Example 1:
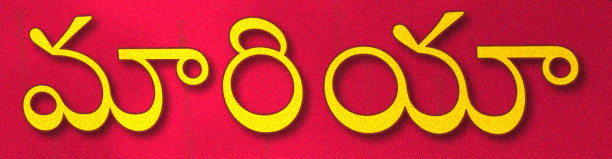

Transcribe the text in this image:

మారియా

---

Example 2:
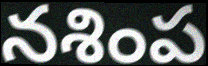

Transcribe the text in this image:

నశింప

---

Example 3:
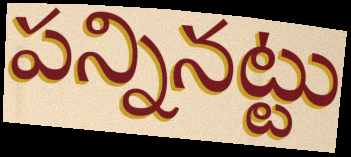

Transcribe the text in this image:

పన్నినట్టు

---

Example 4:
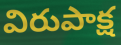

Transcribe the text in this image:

విరుపాక్ష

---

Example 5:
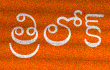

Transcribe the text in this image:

త్రిలోక్